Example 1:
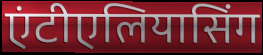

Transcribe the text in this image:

एंटीएलियासिंग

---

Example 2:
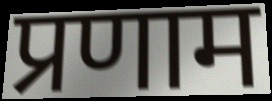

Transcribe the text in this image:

प्रणाम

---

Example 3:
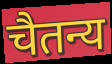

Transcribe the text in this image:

चैतन्य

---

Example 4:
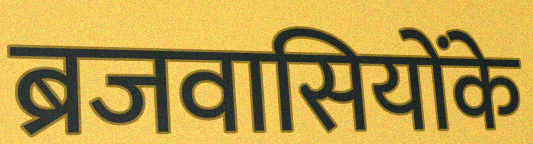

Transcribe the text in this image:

ब्रजवासियोंके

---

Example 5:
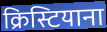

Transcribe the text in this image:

क्रिस्टियाना